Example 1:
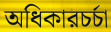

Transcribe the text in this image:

অধিকারচর্চা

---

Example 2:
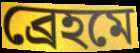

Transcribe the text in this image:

ব্রেহমে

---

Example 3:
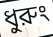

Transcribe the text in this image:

ধুরুং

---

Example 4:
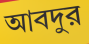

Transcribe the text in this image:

আবদুর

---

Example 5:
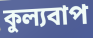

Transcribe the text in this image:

কুল্যবাপ